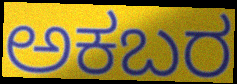
ಅಕಬರ